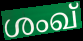
ശംഖ്